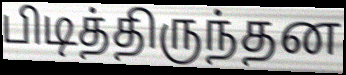
பிடித்திருந்தன